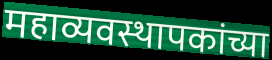
महाव्यवस्थापकांच्या